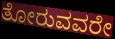
ತೋರುವವರೇ